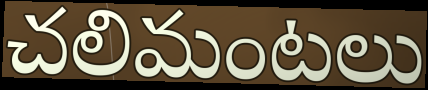
చలిమంటలు